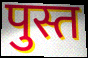
पुस्त